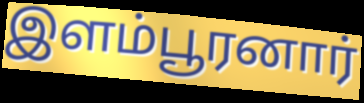
இளம்பூரனார்